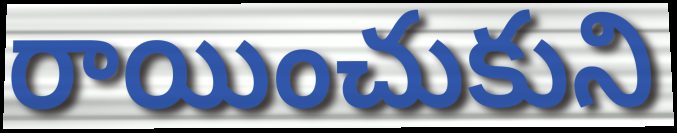
రాయించుకుని